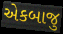
એકબાજુ